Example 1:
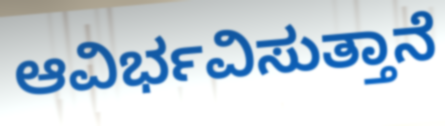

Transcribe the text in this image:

ಆವಿರ್ಭವಿಸುತ್ತಾನೆ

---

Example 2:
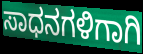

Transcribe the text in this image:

ಸಾಧನಗಳಿಗಾಗಿ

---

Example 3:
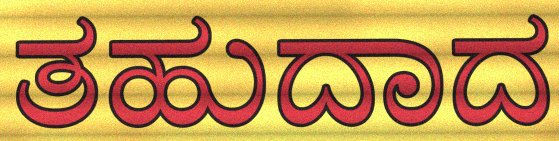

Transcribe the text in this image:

ತಹುದಾದ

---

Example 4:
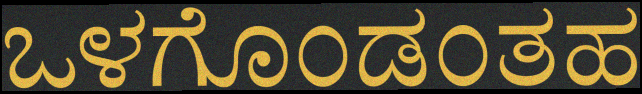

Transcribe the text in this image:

ಒಳಗೊಂಡಂತಹ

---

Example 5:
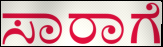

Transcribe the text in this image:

ಸಾರಾಗೆ